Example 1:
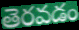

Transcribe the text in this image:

తెరవడం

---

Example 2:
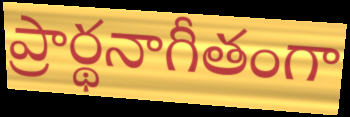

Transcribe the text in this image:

ప్రార్థనాగీతంగా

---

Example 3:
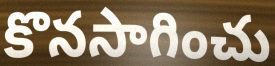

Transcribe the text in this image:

కొనసాగించు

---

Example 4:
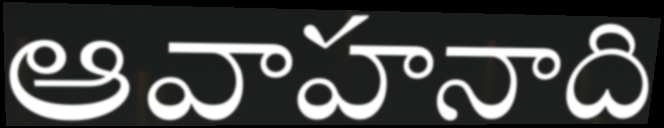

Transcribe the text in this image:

ఆవాహనాది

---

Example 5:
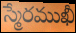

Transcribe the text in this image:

స్మేరముఖీ